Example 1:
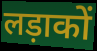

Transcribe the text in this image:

लड़ाकों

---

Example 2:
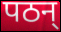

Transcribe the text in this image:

पठन्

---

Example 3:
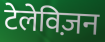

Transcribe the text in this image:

टेलेविज़न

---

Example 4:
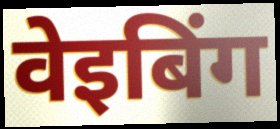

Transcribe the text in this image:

वेइबिंग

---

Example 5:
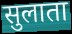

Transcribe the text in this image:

सुलाता